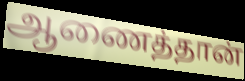
ஆணைத்தான்